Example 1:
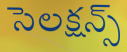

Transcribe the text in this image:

సెలక్షన్స్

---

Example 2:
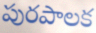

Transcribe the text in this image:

పురపాలక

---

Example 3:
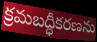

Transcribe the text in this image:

క్రమబద్ధీకరణను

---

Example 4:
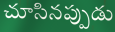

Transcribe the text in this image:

చూసినప్పుడు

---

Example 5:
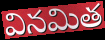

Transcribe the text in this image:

వినమిత